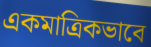
একমাত্রিকভাবে